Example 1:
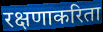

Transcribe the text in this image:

रक्षणाकरिता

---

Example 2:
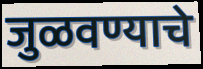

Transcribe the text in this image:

जुळवण्याचे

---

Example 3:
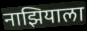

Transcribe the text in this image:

नाझियाला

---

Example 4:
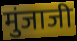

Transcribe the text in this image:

मुंजाजी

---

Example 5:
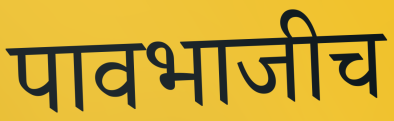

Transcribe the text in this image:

पावभाजीच